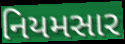
નિયમસાર